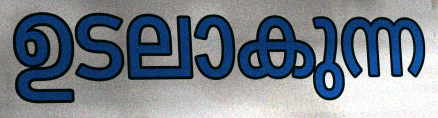
ഉടലാകുന്ന